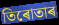
তিৰোতাৰ